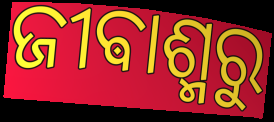
ଜୀଵାଶ୍ମରୁ